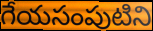
గేయసంపుటిని